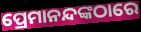
ପ୍ରେମାନନ୍ଦଙ୍କଠାରେ